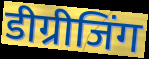
डीग्रीजिंग